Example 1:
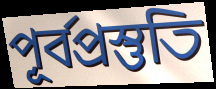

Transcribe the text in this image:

পূর্বপ্রস্তুতি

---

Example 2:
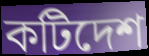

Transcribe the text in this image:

কটিদেশ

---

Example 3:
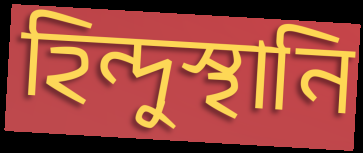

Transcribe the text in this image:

হিন্দুস্থানি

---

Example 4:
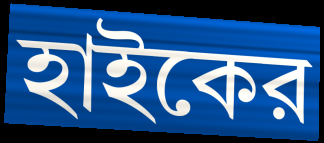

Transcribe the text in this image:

হাইকের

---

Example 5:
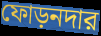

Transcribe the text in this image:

ফোড়নদার